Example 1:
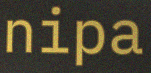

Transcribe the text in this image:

nipa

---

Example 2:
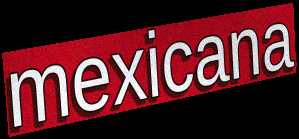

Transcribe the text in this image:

mexicana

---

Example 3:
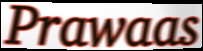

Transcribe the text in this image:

Prawaas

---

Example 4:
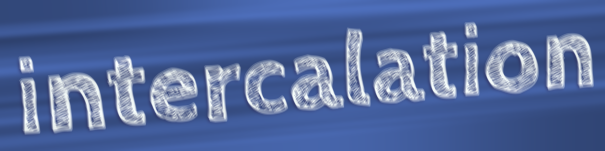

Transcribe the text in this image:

intercalation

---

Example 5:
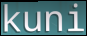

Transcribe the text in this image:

kuni